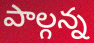
పాల్గన్న